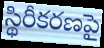
స్థిరీకరణపై